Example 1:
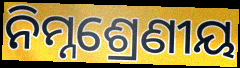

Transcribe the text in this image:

ନିମ୍ନଶ୍ରେଣୀୟ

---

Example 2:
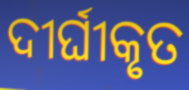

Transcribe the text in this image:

ଦୀର୍ଘୀକୃତ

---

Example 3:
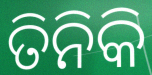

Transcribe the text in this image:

ତିନିକି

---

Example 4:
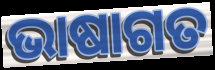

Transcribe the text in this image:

ଭାଷାଗତ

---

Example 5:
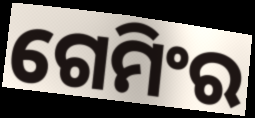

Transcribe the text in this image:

ଗେମିଂର